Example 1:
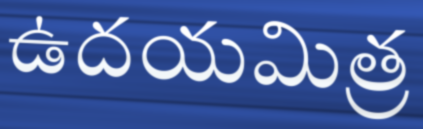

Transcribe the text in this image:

ఉదయమిత్ర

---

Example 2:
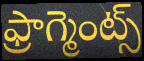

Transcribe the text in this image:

ఫ్రాగ్మెంట్స్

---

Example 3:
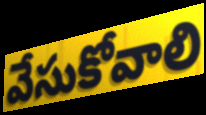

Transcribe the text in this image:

వేసుకోవాలి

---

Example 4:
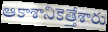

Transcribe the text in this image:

ఆకాశానికెత్తేశారు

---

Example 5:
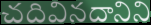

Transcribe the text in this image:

చదివినదానిని